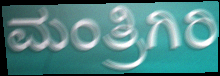
ಮಂತ್ರಿಗಿರಿ